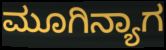
ಮೂಗಿನ್ಯಾಗ